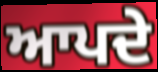
ਆਪਦੇ